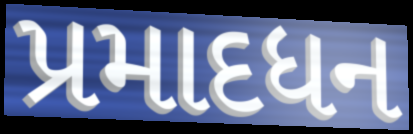
પ્રમાદધન